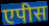
एपीस